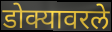
डोक्यावरले